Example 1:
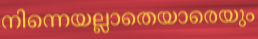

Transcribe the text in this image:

നിന്നെയല്ലാതെയാരെയും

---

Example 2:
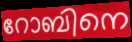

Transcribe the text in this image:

റോബിനെ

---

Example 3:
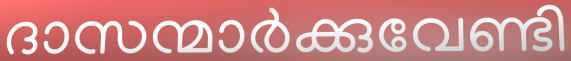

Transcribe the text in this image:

ദാസന്മാർക്കുവേണ്ടി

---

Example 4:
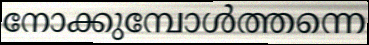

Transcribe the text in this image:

നോക്കുമ്പോൾത്തന്നെ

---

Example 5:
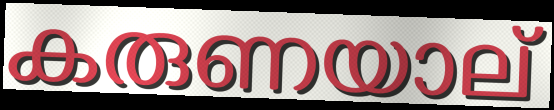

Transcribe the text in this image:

കരുണയാല്